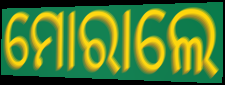
ମୋରାଲେ